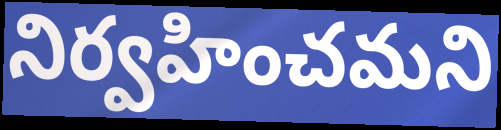
నిర్వహించమని